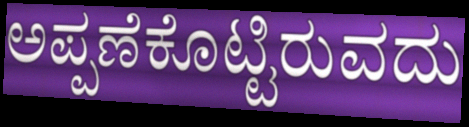
ಅಪ್ಪಣೆಕೊಟ್ಟಿರುವದು